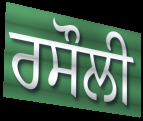
ਰਸੌਲੀ